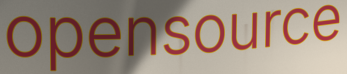
opensource